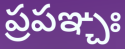
ప్రపఞ్చః